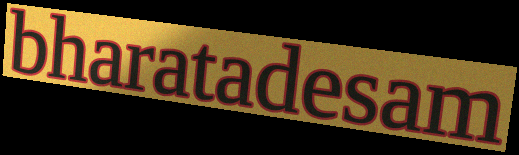
bharatadesam